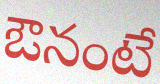
ఔనంటే